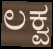
ಲಕ್ವ